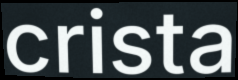
crista